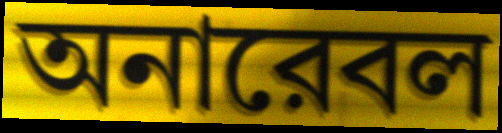
অনারেবল